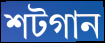
শটগান